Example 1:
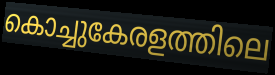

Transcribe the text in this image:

കൊച്ചുകേരളത്തിലെ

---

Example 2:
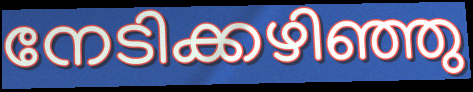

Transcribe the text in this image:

നേടിക്കഴിഞ്ഞു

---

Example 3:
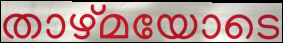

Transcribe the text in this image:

താഴ്മയോടെ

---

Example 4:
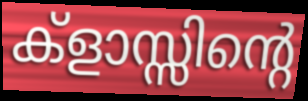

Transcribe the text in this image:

ക്ളാസ്സിന്റെ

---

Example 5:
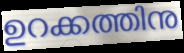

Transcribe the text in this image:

ഉറക്കത്തിനു